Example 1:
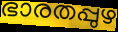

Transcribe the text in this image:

ഭാരതപ്പുഴ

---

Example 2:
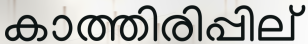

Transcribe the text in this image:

കാത്തിരിപ്പില്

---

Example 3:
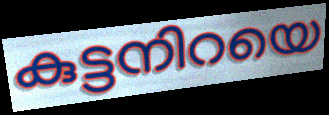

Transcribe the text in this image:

കുട്ടനിറയെ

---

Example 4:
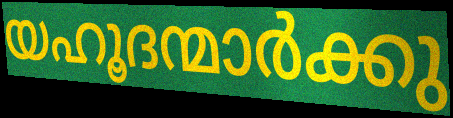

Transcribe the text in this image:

യഹൂദന്മാർക്കു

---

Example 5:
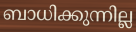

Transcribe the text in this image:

ബാധിക്കുന്നില്ല